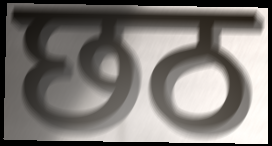
छठ